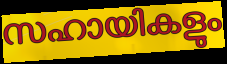
സഹായികളും